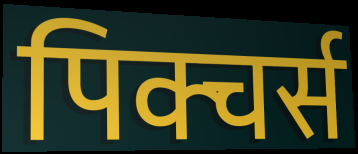
पिक्चर्स